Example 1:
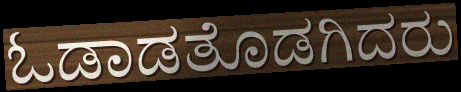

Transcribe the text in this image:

ಓಡಾಡತೊಡಗಿದರು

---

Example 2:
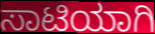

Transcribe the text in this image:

ಸಾಟಿಯಾಗಿ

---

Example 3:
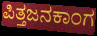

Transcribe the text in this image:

ಪಿತ್ತಜನಕಾಂಗ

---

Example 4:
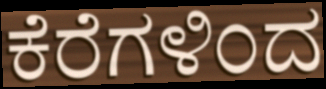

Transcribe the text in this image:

ಕೆರೆಗಳಿಂದ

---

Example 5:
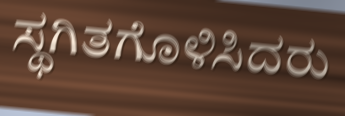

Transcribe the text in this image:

ಸ್ಥಗಿತಗೊಳಿಸಿದರು